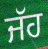
ਜੱਹ